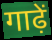
गाढ़ें